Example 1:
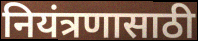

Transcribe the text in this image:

नियंत्रणासाठी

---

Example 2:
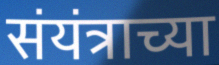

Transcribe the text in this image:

संयंत्राच्या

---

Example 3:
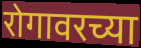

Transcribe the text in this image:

रोगावरच्या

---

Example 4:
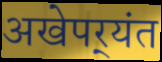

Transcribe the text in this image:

अखेपर्यंत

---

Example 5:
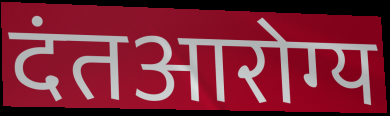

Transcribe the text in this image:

दंतआरोग्य